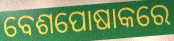
ବେଶପୋଷାକରେ